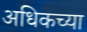
अधिकच्या